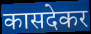
कासदेकर